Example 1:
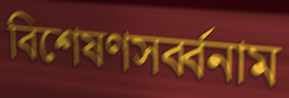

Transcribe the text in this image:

বিশেষণসৰ্ব্বনাম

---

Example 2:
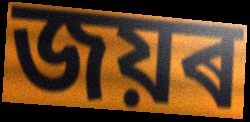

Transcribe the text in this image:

জয়ৰ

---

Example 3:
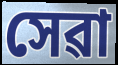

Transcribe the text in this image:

সেৱা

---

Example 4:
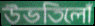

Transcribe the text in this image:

উভতিলোঁ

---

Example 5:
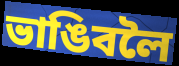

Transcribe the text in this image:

ভাঙিবলৈ